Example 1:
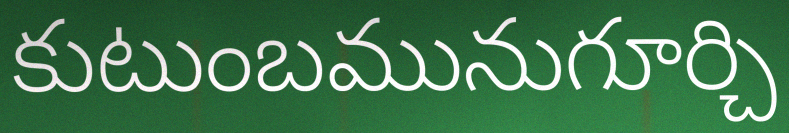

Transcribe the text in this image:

కుటుంబమునుగూర్చి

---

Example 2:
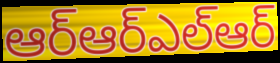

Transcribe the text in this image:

ఆర్ఆర్ఎల్ఆర్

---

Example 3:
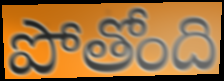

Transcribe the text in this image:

పోతోంది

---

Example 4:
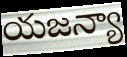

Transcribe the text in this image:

యజన్యా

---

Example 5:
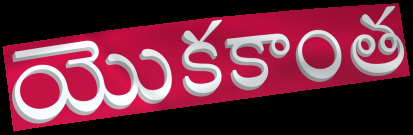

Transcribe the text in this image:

యొకకాంత